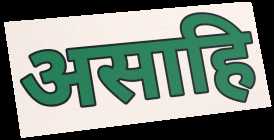
असाहि